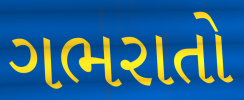
ગભરાતો